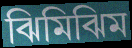
ঝিমিঝিম